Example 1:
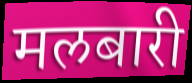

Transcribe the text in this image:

मलबारी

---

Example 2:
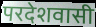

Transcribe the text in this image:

परदेशवासी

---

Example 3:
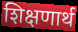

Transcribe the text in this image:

शिक्षणार्थ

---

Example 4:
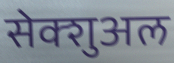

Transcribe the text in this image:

सेक्शुअल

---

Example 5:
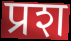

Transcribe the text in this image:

प्रश